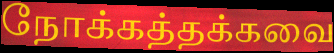
நோக்கத்தக்கவை